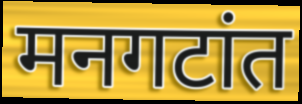
मनगटांत